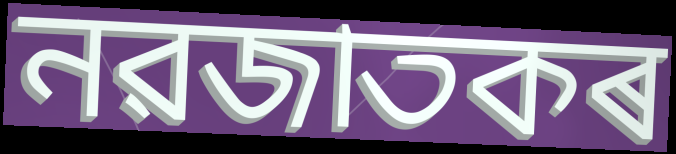
নৱজাতকৰ